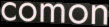
comon